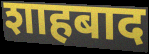
शाहबाद